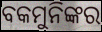
ବକମୁନିଙ୍କର